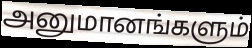
அனுமானங்களும்